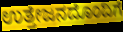
ಉತ್ತೇಜನದೊಂದಿಗೆ